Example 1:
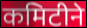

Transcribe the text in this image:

कमिटीने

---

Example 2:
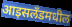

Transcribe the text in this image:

आइसलँडमधील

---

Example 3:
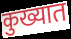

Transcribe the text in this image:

कुख्यात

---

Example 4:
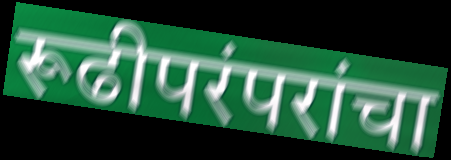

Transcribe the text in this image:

रूढीपरंपरांचा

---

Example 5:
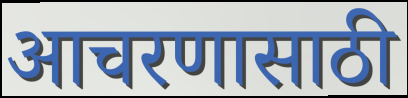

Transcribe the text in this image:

आचरणासाठी